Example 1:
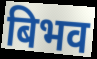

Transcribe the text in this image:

बिभव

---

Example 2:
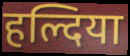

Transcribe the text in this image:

हल्दिया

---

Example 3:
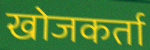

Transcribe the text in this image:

खोजकर्ता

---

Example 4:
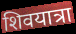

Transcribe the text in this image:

शिवयात्रा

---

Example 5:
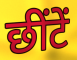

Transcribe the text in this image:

छींटें